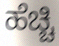
ಹೆಚ್ಚಿ